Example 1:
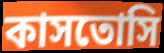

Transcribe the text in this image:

কাসতোসি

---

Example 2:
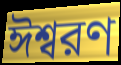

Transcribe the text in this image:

ঈশ্বরণ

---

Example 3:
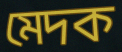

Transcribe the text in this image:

মেদক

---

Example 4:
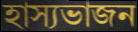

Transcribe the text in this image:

হাস্যভাজন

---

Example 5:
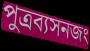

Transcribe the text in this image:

পুত্রব্যসনজং